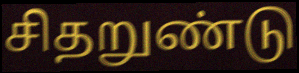
சிதறுண்டு